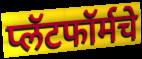
प्लॅटफॉर्मचे